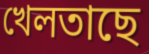
খেলতাছে